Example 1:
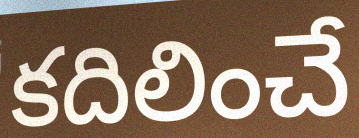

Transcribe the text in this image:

కదిలించే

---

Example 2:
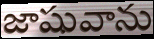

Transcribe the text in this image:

జాషువాను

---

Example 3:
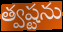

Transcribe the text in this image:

త్వష్టను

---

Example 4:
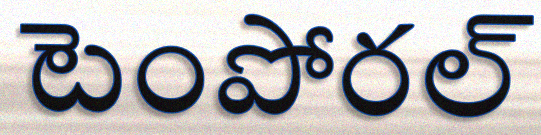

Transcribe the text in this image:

టెంపోరల్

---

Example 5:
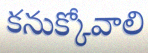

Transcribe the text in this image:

కనుక్కోవాలి